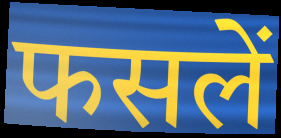
फसलें